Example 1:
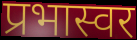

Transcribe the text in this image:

प्रभास्वर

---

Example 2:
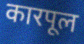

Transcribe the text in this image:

कारपूल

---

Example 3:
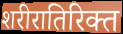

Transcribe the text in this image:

शरीरातिरिक्त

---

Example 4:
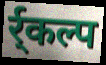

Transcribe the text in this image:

र्र्कल्प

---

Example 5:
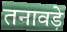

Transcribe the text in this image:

तनावड़े